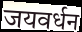
जयवर्धन